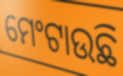
ମେଂଟାଉଛି